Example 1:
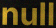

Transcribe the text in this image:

null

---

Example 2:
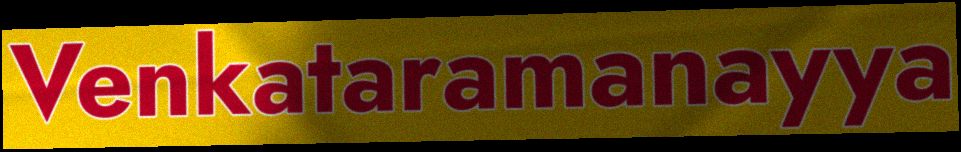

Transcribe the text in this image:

Venkataramanayya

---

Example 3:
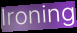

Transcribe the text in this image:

Ironing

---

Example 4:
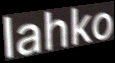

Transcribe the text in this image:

lahko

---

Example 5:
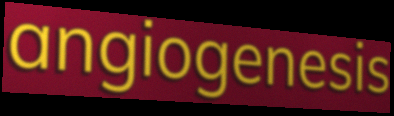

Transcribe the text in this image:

angiogenesis